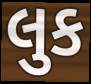
લુક